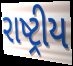
રાષ્ટ્રીય